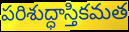
పరిశుద్ధాస్తికమత